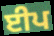
ਈਪ